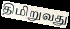
திமிறுவது